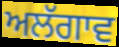
ਅਲੱਗਾਵ